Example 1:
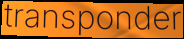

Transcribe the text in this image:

transponder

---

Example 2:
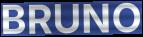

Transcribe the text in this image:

BRUNO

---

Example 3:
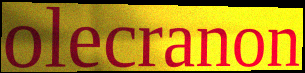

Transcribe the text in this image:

olecranon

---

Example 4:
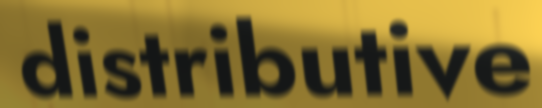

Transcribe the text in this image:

distributive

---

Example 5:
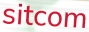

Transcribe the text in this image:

sitcom